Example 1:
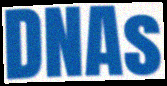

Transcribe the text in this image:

DNAs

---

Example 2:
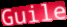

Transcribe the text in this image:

Guile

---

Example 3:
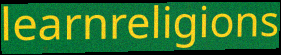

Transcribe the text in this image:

learnreligions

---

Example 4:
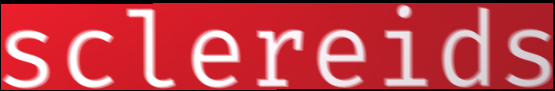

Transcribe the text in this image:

sclereids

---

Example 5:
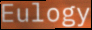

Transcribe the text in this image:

Eulogy